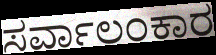
ಸರ್ವಾಲಂಕಾರ